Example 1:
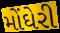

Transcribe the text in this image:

મોંઘેરી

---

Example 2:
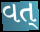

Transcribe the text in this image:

વત્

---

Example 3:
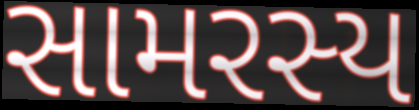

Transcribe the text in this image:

સામરસ્ય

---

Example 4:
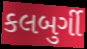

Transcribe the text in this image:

કલબુર્ગી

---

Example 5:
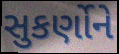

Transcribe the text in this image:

સુકર્ણોને